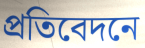
প্ৰতিবেদনে